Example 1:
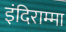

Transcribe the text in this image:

इंदिराम्मा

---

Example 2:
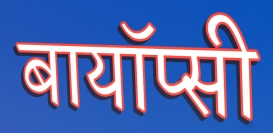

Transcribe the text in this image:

बायॉप्सी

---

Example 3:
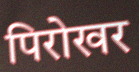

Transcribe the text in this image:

पिरोखर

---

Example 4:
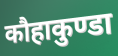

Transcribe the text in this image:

कौहाकुण्डा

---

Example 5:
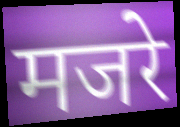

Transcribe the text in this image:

मजरे